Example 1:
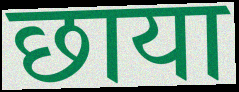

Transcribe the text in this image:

छाया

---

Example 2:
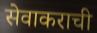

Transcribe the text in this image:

सेवाकराची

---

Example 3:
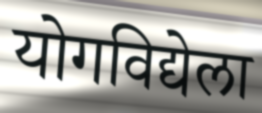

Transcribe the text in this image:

योगविद्येला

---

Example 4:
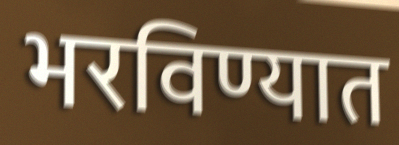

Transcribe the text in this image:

भरविण्यात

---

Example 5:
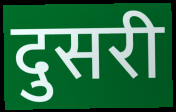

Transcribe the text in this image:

दुसरी